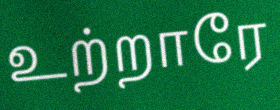
உற்றாரே